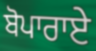
ਬੋਪਾਰਾਏ